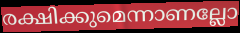
രക്ഷിക്കുമെന്നാണല്ലോ